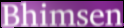
Bhimsen